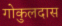
गोकुलदास